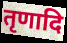
तृणादि